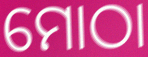
ମୋଠା